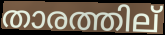
താരത്തില്